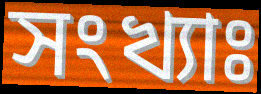
সংখ্যাঃ